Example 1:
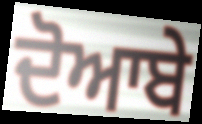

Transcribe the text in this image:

ਦੋਆਬੇ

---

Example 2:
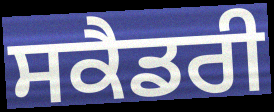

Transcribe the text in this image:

ਸਕੈਡਰੀ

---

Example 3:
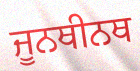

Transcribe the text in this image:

ਜੂਨਥੀਨਥ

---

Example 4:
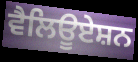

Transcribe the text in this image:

ਵੈਲਿਊਏਸ਼ਨ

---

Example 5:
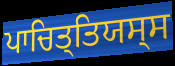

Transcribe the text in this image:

ਪਾਚਿਤ੍ਤਿਯਸ੍ਸ